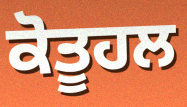
ਕੋਤੂਹਲ